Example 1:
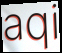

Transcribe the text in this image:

aqi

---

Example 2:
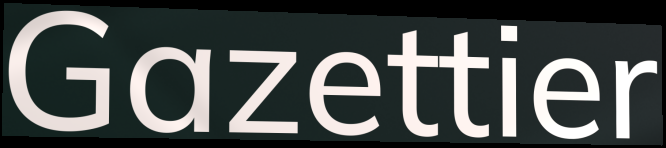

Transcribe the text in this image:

Gazettier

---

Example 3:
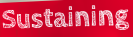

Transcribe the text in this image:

Sustaining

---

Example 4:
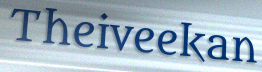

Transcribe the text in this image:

Theiveekan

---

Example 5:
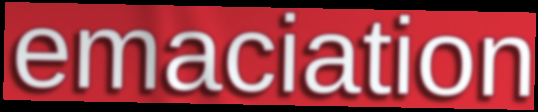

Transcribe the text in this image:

emaciation